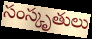
సంస్కృతులు